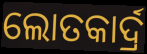
ଲୋତକାର୍ଦ୍ର